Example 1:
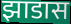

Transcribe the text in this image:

झाडास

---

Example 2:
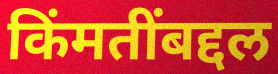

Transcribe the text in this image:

किंमतींबद्दल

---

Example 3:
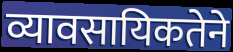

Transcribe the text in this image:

व्यावसायिकतेने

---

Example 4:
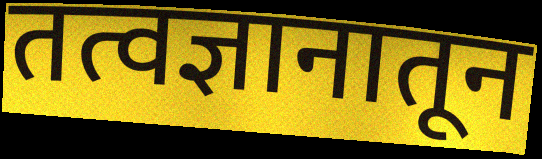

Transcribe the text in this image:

तत्वज्ञानातून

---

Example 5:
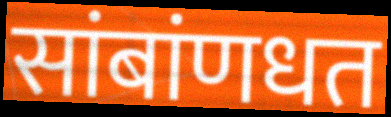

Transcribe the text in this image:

सांबांणधत